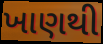
ખાણથી